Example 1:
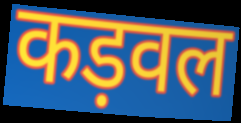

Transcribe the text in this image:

कड़वल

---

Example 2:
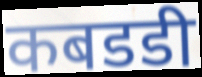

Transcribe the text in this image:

कबडडी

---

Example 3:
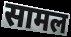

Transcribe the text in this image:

सामल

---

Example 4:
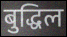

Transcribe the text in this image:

बुद्धिल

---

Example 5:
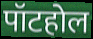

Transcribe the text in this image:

पॉटहोल